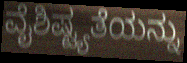
ವೈಶಿಷ್ಟ್ಯತೆಯನ್ನು